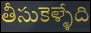
తీసుకెళ్ళేది